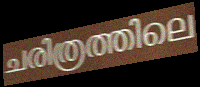
ചരിത്രത്തിലെ